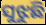
ସୁଝୁଛି